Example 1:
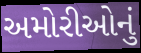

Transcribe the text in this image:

અમોરીઓનું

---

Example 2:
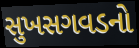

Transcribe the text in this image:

સુખસગવડનો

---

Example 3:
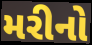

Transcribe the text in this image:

મરીનો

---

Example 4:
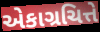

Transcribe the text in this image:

એકાગ્રચિત્તે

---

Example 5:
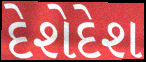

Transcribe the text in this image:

દેશેદેશ